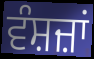
ਵੰਸ਼ਜ਼ਾਂ